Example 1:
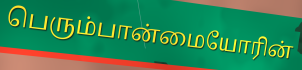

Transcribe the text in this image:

பெரும்பான்மையோரின்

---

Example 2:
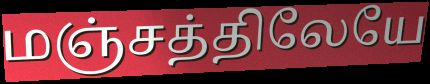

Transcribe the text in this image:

மஞ்சத்திலேயே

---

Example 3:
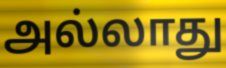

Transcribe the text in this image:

அல்லாது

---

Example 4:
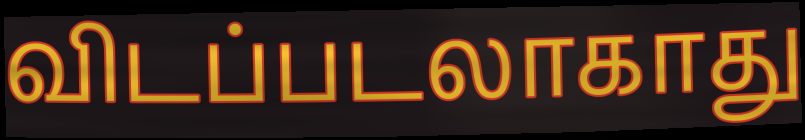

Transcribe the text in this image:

விடப்படலாகாது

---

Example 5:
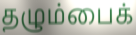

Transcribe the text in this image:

தழும்பைக்